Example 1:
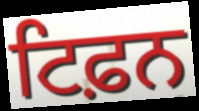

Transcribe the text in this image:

ਟਿਫ਼ਨ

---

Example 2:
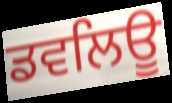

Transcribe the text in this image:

ਡਵਲਿਊ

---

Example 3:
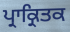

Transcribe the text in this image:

ਪ੍ਰਾਕ੍ਰਿਤਕ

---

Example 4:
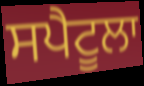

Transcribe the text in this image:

ਸਪੈਟੂਲਾ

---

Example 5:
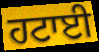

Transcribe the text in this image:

ਹਟਾਈ